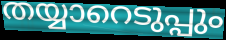
തയ്യാറെടുപ്പും